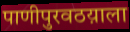
पाणीपुरवठय़ाला